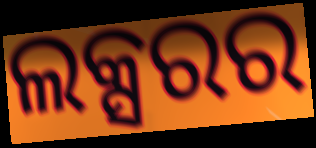
ଲକ୍ସରର